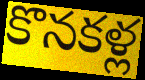
కొనకళ్ల